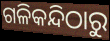
ଗଳିକନ୍ଦିଠାରୁ